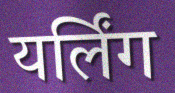
यर्लिंग